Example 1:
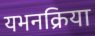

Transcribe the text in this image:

यभनक्रिया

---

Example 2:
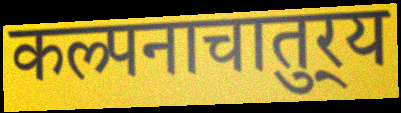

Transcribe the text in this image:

कल्पनाचातुर्य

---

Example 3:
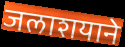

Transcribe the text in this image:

जलाशयाने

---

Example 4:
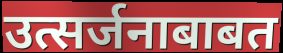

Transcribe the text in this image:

उत्सर्जनाबाबत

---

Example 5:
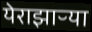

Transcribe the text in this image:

येराझाऱ्या